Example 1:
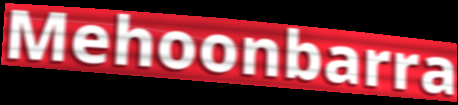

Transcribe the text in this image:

Mehoonbarra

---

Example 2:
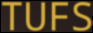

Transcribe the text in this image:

TUFS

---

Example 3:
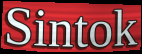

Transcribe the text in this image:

Sintok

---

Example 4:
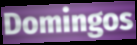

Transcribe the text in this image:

Domingos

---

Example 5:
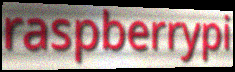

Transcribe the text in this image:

raspberrypi